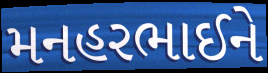
મનહરભાઈને